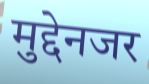
मुद्देनजर